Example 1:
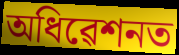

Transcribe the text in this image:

অধিৱেশনত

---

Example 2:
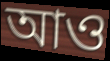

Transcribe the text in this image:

আও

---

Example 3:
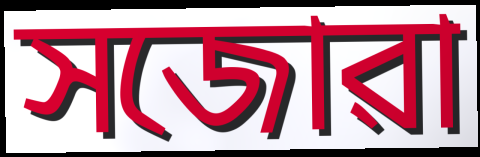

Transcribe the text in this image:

সজোৱা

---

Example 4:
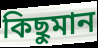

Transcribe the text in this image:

কিছুমান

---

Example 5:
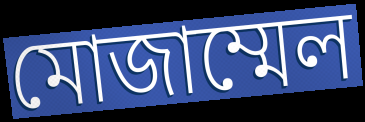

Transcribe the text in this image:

মোজাম্মেল